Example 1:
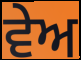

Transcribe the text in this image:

ਵੇਅ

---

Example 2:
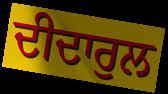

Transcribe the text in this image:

ਦੀਦਾਰੁਲ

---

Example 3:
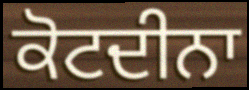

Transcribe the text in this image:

ਕੋਟਦੀਨਾ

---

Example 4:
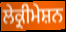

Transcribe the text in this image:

ਲੇਕ੍ਰੀਮੇਸ਼ਨ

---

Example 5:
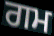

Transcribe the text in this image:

ਗਮ